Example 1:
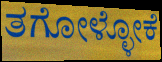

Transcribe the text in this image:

ತಗೋಳ್ಳೋಕೆ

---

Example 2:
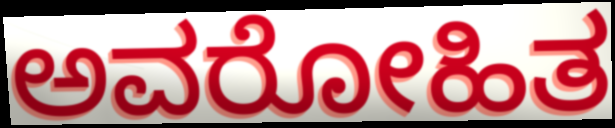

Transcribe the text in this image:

ಅವರೋಹಿತ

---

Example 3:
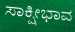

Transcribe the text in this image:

ಸಾಕ್ಷೀಭಾವ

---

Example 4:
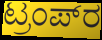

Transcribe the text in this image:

ಟ್ರಂಪ್‍ರ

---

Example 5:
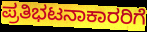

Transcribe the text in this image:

ಪ್ರತಿಭಟನಾಕಾರರಿಗೆ